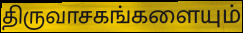
திருவாசகங்களையும்